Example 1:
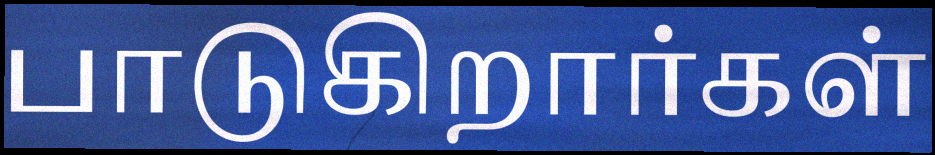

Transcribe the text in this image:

பாடுகிறார்கள்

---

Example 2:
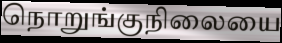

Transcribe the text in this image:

நொறுங்குநிலையை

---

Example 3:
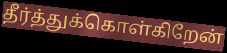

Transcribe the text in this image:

தீர்த்துக்கொள்கிறேன்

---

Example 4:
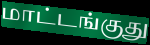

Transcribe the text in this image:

மாட்டங்குது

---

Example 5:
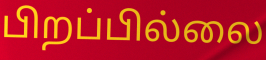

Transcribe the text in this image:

பிறப்பில்லை